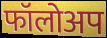
फॉलोअप